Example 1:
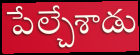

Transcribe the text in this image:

పేల్చేశాడు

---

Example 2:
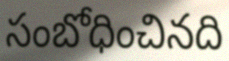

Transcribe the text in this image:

సంబోధించినది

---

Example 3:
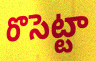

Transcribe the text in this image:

రొసెట్టా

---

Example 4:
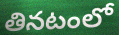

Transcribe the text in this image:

తినటంలో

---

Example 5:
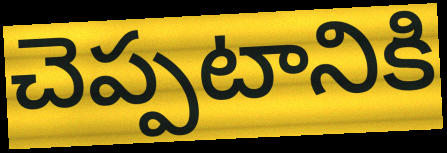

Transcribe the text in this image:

చెప్పటానికి